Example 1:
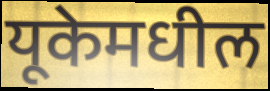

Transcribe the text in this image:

यूकेमधील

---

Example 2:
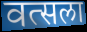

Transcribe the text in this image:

वत्सला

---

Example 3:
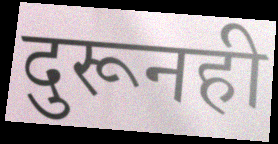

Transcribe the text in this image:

दुरूनही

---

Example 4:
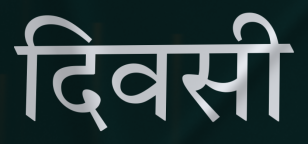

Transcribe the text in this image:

दिवसी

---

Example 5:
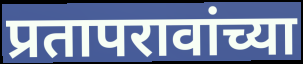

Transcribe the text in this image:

प्रतापरावांच्या